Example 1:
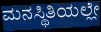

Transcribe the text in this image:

ಮನಸ್ಥಿತಿಯಲ್ಲೇ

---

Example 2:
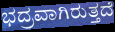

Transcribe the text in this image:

ಭದ್ರವಾಗಿರುತ್ತದೆ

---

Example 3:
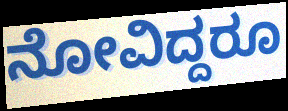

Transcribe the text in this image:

ನೋವಿದ್ದರೂ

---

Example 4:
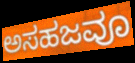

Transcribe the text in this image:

ಅಸಹಜವೂ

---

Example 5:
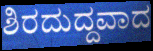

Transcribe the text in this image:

ಶಿರದುದ್ದವಾದ